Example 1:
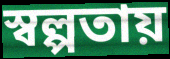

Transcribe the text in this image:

স্বল্পতায়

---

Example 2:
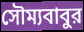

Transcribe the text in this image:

সৌম্যবাবুর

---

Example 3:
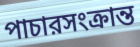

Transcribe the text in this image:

পাচারসংক্রান্ত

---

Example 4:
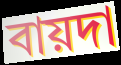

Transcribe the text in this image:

বায়দা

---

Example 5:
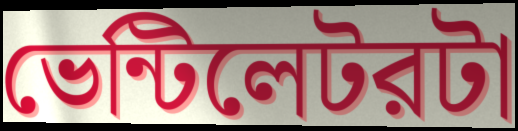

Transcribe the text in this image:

ভেন্টিলেটরটা